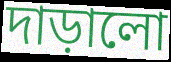
দাড়ালো